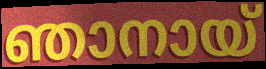
ഞാനായ്